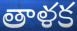
తాళక